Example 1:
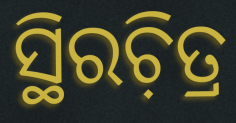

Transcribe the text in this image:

ସ୍ଥିରଚ଼ିତ୍ର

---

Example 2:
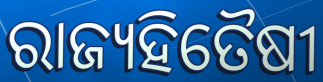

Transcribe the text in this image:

ରାଜ୍ୟହିତୈଷୀ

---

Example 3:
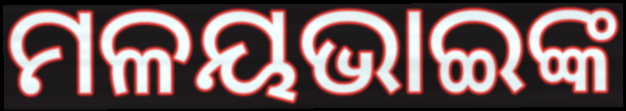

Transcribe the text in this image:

ମଳୟଭାଇଙ୍କ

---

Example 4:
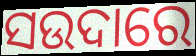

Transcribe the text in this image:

ସଉଦାରେ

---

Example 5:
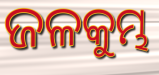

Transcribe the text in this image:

ଜଳକୁମ୍ଭ